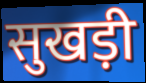
सुखड़ी